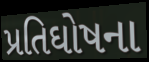
પ્રતિઘોષના